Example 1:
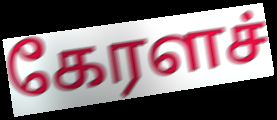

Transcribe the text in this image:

கேரளச்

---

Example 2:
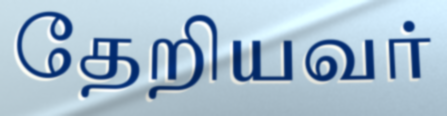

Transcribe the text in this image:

தேறியவர்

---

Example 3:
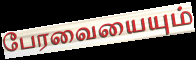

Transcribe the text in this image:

பேரவையையும்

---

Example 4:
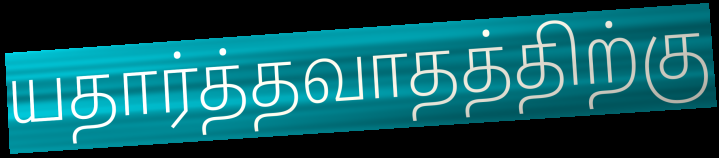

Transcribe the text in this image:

யதார்த்தவாதத்திற்கு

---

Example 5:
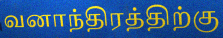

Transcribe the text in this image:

வனாந்திரத்திற்கு